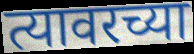
त्यावरच्या